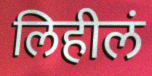
लिहीलं